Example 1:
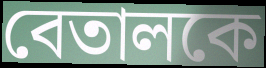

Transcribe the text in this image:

বেতালকে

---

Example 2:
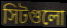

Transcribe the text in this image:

সিটগুলো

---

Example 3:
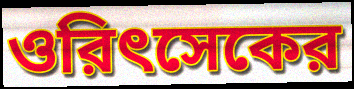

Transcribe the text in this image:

ওরিৎসেকের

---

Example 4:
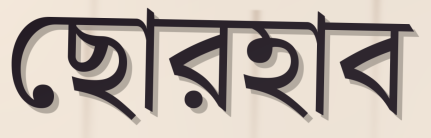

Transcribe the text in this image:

ছোরহাব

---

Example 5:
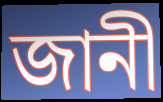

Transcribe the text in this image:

জানী